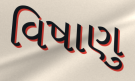
વિષાણુ